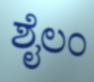
ಶೈಲಂ